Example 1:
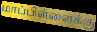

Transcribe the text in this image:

மாப்பிள்ளைக்கு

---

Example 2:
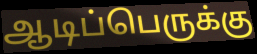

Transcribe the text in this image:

ஆடிப்பெருக்கு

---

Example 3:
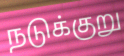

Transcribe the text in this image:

நடுக்குறு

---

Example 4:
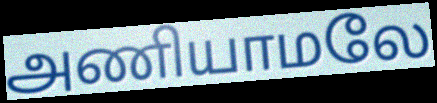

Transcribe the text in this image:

அணியாமலே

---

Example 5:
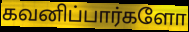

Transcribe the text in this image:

கவனிப்பார்களோ